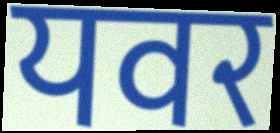
यवर